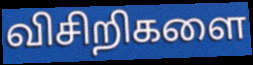
விசிறிகளை